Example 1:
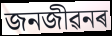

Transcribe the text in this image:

জনজীৱনৰ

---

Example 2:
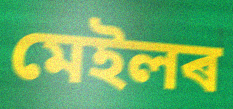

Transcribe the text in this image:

মেইলৰ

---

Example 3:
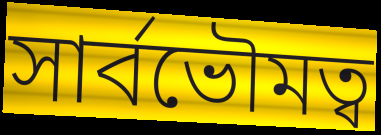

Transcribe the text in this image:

সাৰ্বভৌমত্ব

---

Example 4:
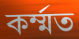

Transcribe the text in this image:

কৰ্ম্মত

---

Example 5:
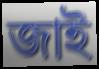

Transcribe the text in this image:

জাই